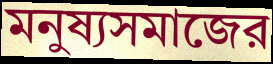
মনুষ্যসমাজের